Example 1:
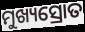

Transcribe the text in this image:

ମୁଖ୍ୟସ୍ରୋତ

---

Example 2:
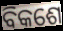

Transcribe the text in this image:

ବିକଶେ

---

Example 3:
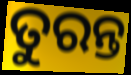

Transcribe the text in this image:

ତୁରନ୍ତ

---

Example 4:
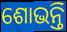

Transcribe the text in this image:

ଶୋଭନ୍ତି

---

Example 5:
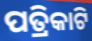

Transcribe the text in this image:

ପତ୍ରିକାଟି